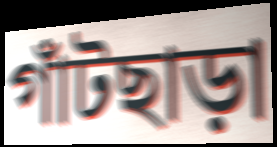
গাঁটছাড়া